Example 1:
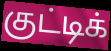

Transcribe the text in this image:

குட்டிக்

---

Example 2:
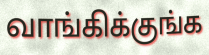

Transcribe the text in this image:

வாங்கிக்குங்க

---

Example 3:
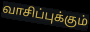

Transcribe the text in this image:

வாசிப்புக்கும்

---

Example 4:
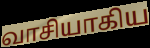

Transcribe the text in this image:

வாசியாகிய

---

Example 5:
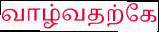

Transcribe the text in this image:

வாழ்வதற்கே